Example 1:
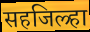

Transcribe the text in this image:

सहजिल्हा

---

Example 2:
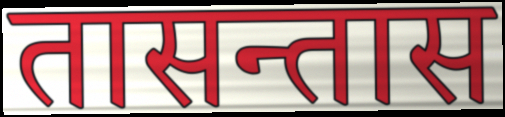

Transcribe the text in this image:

तासन्तास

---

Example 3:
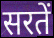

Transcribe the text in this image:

सरतें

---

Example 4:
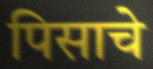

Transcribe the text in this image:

पिसाचे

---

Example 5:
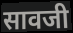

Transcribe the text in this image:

सावजी